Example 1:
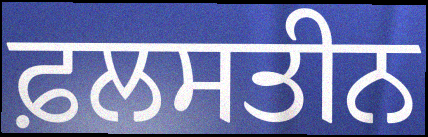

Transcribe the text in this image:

ਫ਼ਲਸਤੀਨ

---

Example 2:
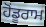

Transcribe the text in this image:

ਹੋਂਡੂਰਾਮ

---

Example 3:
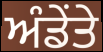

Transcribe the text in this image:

ਅੰਡੇਂਤੇ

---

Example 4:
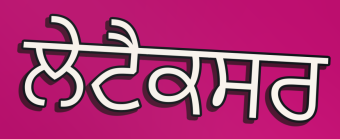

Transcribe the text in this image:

ਲੇਟੈਕਸਰ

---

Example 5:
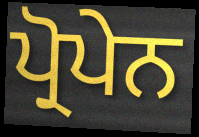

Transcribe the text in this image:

ਪ੍ਰੋਪੇਨ